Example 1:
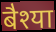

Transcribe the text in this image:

बैश्या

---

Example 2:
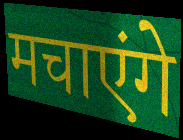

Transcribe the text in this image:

मचाएंगे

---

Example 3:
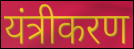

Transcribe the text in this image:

यंत्रीकरण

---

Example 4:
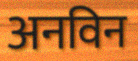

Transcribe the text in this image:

अनविन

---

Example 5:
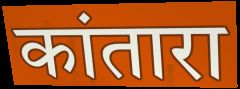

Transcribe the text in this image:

कांतारा